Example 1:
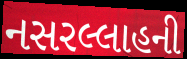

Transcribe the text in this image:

નસરલ્લાહની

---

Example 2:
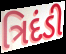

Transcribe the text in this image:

ત્રિદંડી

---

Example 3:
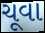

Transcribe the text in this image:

ચૂવા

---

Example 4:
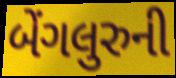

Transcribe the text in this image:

બેંગલુરુની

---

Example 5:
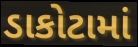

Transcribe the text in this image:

ડાકોટામાં